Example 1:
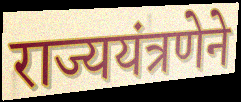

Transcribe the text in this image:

राज्ययंत्रणेने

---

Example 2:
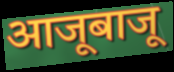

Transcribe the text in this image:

आजूबाजू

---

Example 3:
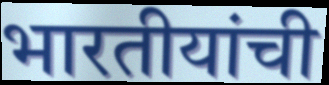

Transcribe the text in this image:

भारतीयांची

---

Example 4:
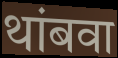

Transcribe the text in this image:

थांबवा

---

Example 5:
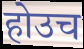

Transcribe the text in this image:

होउच